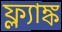
ফ্ল্যাঙ্ক